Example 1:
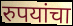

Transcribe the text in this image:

रुपयांचा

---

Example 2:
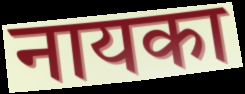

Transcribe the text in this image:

नायका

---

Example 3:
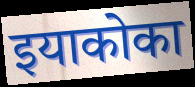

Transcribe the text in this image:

इयाकोका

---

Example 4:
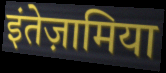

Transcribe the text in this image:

इंतेज़ामिया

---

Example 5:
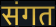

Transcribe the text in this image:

संगत